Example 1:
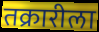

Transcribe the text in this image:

तक्रारीला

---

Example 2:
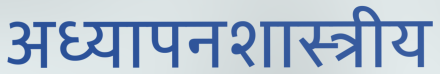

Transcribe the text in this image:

अध्यापनशास्त्रीय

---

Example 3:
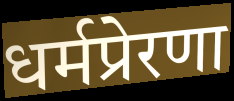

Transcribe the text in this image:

धर्मप्रेरणा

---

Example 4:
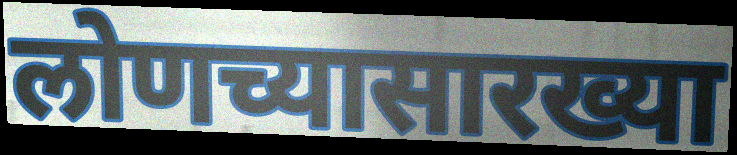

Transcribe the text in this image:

लोणच्यासारख्या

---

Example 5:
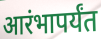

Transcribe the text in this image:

आरंभापर्यंत